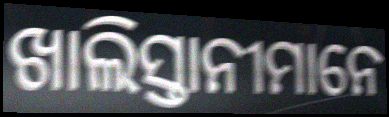
ଖାଲିସ୍ତାନୀମାନେ